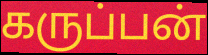
கருப்பன்